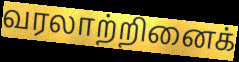
வரலாற்றினைக்